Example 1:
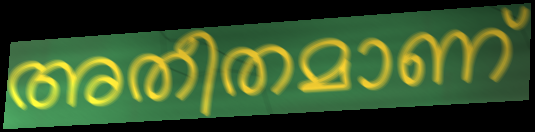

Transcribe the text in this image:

അതീതമാണ്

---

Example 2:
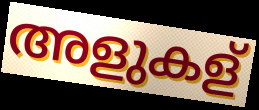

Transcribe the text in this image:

അളുകള്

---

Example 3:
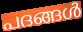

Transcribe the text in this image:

പദങ്ങൾ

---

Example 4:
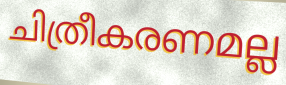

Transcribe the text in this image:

ചിത്രീകരണമല്ല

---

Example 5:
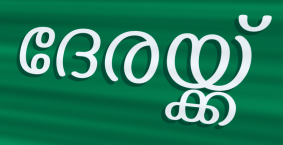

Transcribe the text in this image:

ദേരയ്ക്ക്